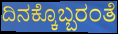
ದಿನಕ್ಕೊಬ್ಬರಂತೆ